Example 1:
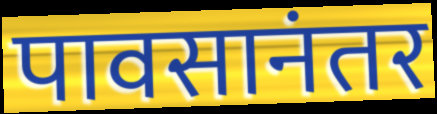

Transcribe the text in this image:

पावसानंतर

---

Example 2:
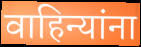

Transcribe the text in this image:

वाहिन्यांना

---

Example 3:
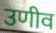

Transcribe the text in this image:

उणीव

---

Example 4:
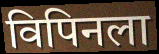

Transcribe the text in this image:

विपिनला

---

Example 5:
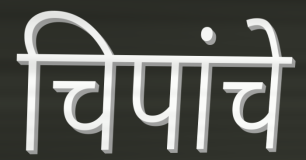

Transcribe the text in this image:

चिपांचे